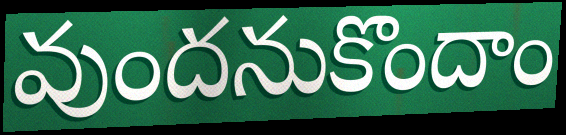
వుందనుకొందాం